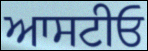
ਆਸਟੀਓ